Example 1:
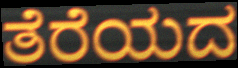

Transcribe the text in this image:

ತೆರೆಯದ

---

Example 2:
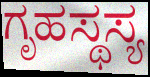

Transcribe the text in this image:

ಗೃಹಸ್ಥಸ್ಯ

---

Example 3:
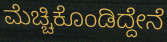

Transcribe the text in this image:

ಮೆಚ್ಚಿಕೊಂಡಿದ್ದೇನೆ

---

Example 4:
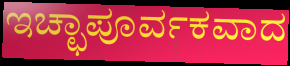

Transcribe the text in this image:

ಇಚ್ಛಾಪೂರ್ವಕವಾದ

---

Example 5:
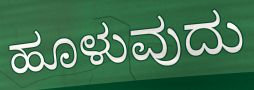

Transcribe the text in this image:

ಹೂಳುವುದು